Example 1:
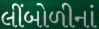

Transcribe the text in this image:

લીંબોળીનાં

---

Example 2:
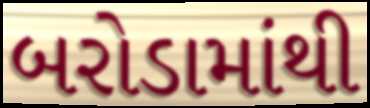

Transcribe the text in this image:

બરોડામાંથી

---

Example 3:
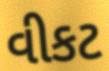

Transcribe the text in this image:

વીકટ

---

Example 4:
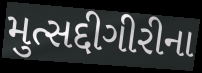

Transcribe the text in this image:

મુત્સદ્દીગીરીના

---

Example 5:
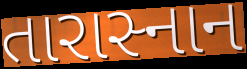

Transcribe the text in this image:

તારાસ્નાન